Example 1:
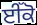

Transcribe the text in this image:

ਈੱਕੋ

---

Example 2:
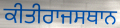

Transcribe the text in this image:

ਕੀਤੀਰਾਜਸਥਾਨ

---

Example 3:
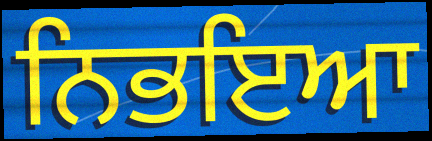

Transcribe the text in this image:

ਨਿਭਇਆ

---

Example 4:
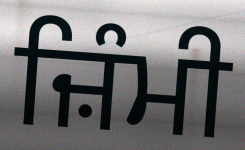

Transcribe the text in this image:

ਜ਼ਿੰਮੀ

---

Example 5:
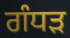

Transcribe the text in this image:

ਗੰਧੜ